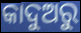
କାଦୁଅରୁ